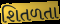
શિતળતા